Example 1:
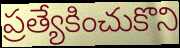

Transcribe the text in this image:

ప్రత్యేకించుకొని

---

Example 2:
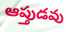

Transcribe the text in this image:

ఆప్తుడవు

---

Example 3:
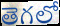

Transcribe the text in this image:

తెగలో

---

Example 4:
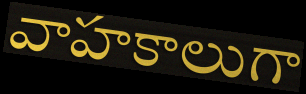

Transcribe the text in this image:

వాహకాలుగా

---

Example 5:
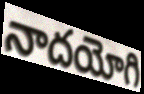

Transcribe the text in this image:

నాదయోగి